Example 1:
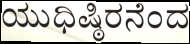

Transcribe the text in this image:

ಯುಧಿಷ್ಠಿರನೆಂದ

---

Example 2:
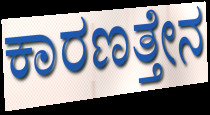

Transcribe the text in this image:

ಕಾರಣತ್ತೇನ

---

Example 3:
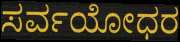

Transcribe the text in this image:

ಸರ್ವಯೋಧರ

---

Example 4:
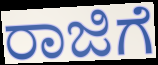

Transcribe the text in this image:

ರಾಜಿಗೆ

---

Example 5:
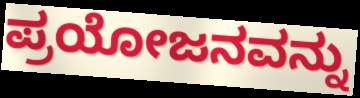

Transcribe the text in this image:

ಪ್ರಯೋಜನವನ್ನು